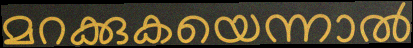
മറക്കുകയെന്നാൽ